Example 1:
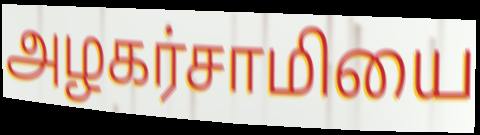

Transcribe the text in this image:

அழகர்சாமியை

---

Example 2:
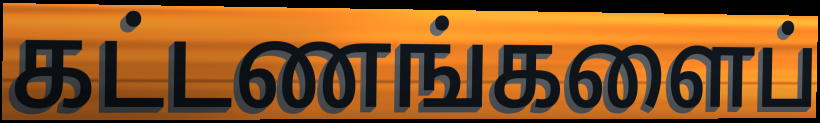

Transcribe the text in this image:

கட்டணங்களைப்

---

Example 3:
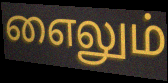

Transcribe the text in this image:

எைலும்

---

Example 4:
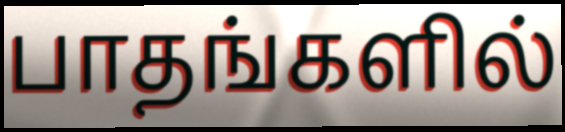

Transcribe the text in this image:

பாதங்களில்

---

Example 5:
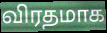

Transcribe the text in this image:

விரதமாக